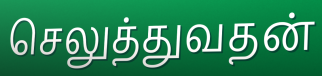
செலுத்துவதன்